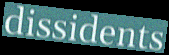
dissidents